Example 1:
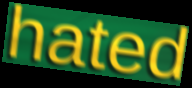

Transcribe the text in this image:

hated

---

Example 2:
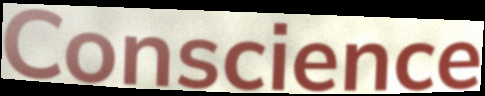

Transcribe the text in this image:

Conscience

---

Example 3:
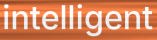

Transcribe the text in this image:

intelligent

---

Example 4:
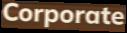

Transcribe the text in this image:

Corporate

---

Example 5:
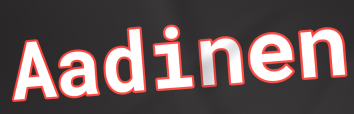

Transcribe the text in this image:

Aadinen